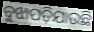
ବୁଝାପଡ଼ିଯାଉଛି